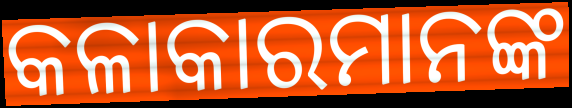
କଳାକାରମାନଙ୍କ